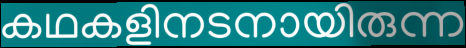
കഥകളിനടനായിരുന്ന